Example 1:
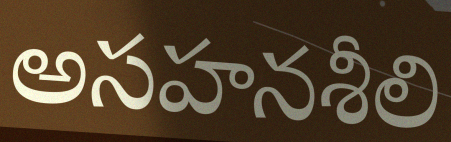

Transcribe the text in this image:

అసహనశీలి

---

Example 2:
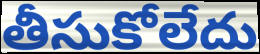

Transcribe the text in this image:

తీసుకోలేదు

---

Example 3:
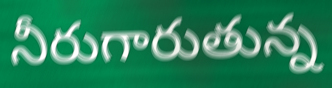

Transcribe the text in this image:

నీరుగారుతున్న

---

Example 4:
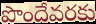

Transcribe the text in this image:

పొందేవరకు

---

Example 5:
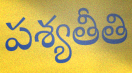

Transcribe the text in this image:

పశ్యతీతి